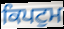
ਕਿਪਟੁਮ